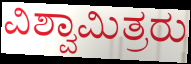
ವಿಶ್ವಾಮಿತ್ರರು